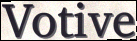
Votive